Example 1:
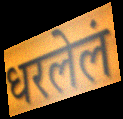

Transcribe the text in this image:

धरलेलं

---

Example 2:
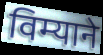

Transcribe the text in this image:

विम्याने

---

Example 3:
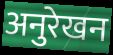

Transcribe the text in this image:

अनुरेखन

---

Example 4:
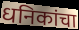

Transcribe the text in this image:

धनिकांचा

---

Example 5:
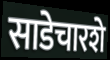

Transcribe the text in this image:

साडेचारशे